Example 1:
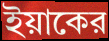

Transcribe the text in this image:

ইয়াকের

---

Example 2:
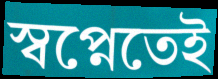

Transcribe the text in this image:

স্বপ্নেতেই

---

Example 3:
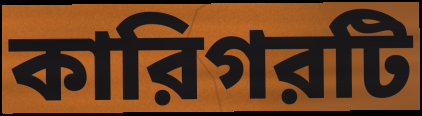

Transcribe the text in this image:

কারিগরটি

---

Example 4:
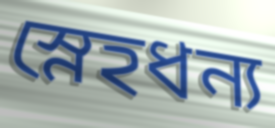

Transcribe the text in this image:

স্নেহধন্য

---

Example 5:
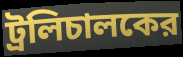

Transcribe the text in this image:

ট্রলিচালকের